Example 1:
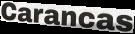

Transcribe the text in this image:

Carancas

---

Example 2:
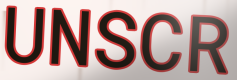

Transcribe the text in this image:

UNSCR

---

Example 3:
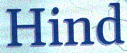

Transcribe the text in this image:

Hind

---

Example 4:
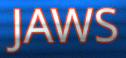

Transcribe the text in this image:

JAWS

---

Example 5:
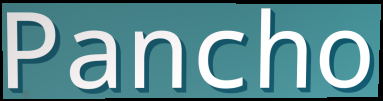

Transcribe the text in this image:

Pancho